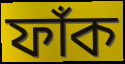
ফাঁক